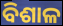
ବିଶାଳ